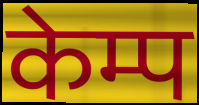
केम्प